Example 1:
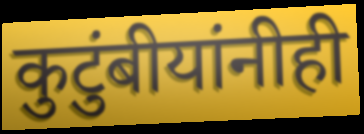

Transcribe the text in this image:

कुटुंबीयांनीही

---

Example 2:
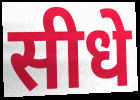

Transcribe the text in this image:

सीधे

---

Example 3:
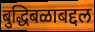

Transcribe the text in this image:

बुद्धिबळाबद्दल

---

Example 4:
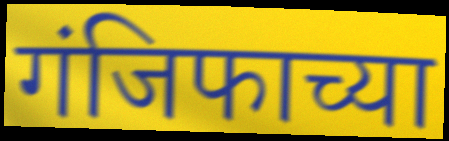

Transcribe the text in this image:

गंजिफाच्या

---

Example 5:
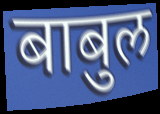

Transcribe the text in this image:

बाबुल